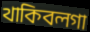
থাকিবলগা